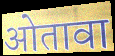
ओतावा